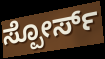
ಸ್ಪೋರ್ಸ್